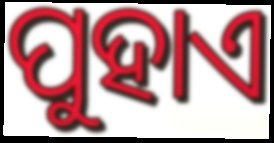
ପୁହାଏ